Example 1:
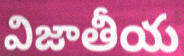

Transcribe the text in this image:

విజాతీయ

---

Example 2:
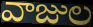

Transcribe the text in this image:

వాజుల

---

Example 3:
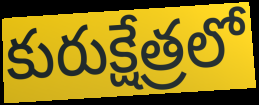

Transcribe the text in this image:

కురుక్షేత్రలో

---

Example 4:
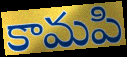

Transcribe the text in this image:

కామపి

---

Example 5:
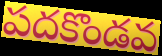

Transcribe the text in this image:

పదకొండవ